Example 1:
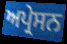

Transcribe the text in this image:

ਅਪ੍ਰੇਸਨ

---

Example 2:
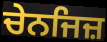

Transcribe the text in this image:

ਚੇਨਜਿਜ਼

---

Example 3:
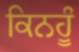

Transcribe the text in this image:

ਕਿਨਹੂੰ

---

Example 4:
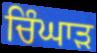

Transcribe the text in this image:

ਚਿੰਘਾੜ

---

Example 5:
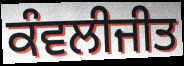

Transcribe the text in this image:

ਕੰਵਲੀਜੀਤ